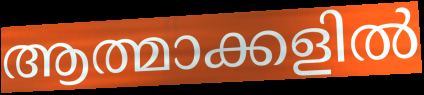
ആത്മാക്കളിൽ